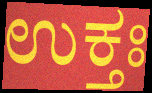
ಉಕ್ತಃ